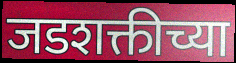
जडशक्तीच्या